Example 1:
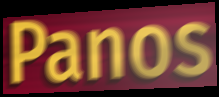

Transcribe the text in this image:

Panos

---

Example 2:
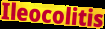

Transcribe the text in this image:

Ileocolitis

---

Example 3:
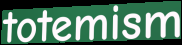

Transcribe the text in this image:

totemism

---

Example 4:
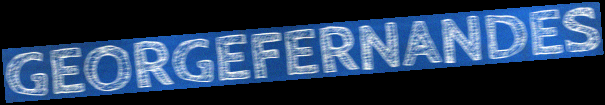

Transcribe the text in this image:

GEORGEFERNANDES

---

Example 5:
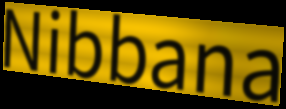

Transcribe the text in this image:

Nibbana